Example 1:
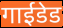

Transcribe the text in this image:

गाईडेड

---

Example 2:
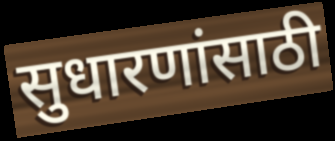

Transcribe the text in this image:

सुधारणांसाठी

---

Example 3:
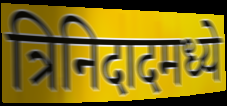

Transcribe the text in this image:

त्रिनिदादमध्ये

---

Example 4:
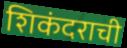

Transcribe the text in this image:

शिकंदराची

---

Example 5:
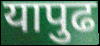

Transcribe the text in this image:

यापुढ